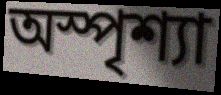
অস্পৃশ্যা